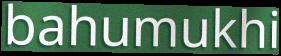
bahumukhi